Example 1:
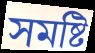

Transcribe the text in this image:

সমষ্টি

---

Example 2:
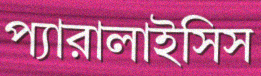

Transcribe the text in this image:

প্যারালাইসিস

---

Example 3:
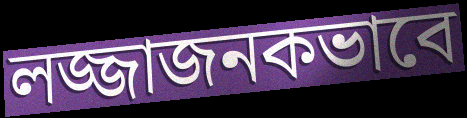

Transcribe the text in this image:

লজ্জাজনকভাবে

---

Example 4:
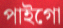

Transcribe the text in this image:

পাইগো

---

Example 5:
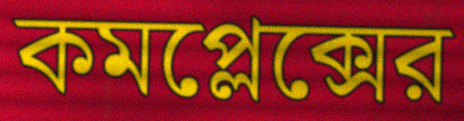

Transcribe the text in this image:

কমপ্লেক্সের